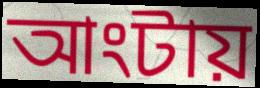
আংটায়